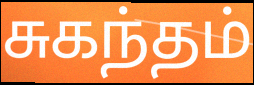
சுகந்தம்